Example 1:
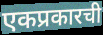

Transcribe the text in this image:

एकप्रकारची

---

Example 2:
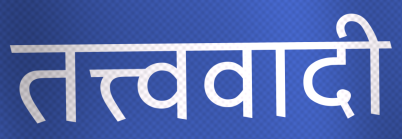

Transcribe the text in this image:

तत्त्ववादी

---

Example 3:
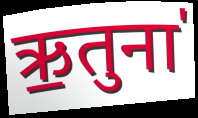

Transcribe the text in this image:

ऋ॒तुना॑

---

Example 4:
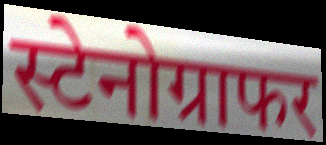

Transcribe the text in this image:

स्टेनोग्राफर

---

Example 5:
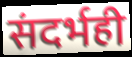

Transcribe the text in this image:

संदर्भही